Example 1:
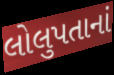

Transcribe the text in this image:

લોલુપતાનાં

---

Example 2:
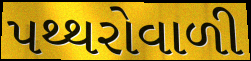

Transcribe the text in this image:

પથ્થરોવાળી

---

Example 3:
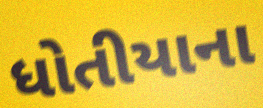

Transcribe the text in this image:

ધોતીયાના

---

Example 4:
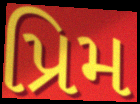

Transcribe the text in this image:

પ્રિમ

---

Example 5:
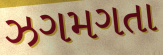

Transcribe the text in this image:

ઝગમગતા